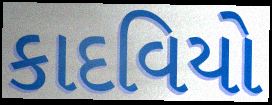
કાદવિયો